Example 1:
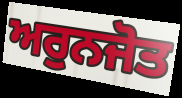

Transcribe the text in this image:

ਅਰੁਨਜੋਤ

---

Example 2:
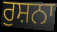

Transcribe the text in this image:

ਰੁਸ਼ਨਾ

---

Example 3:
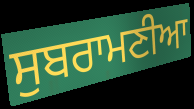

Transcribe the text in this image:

ਸੁਬਰਾਮਣੀਆ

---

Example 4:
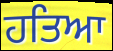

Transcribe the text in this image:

ਹਤਿਆ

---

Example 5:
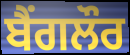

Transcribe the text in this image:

ਬੈਂਗਲੌਰ